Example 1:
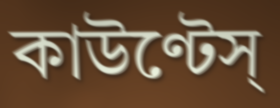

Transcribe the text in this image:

কাউণ্টেস্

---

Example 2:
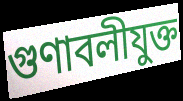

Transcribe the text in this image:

গুণাবলীযুক্ত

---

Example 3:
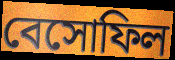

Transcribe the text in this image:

বেসোফিল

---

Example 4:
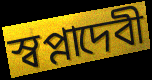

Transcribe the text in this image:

স্বপ্নাদেবী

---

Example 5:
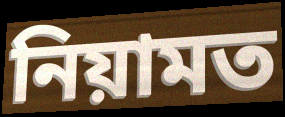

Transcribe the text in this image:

নিয়ামত